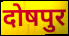
दोषपुर